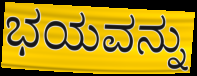
ಭಯವನ್ನು